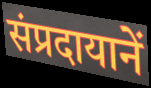
संप्रदायानें